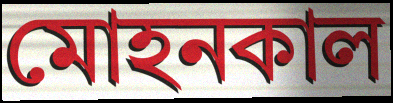
মোহনকাল